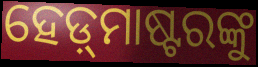
ହେଡ଼୍‌ମାଷ୍ଟରଙ୍କୁ